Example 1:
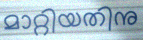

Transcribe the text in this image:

മാറ്റിയതിനു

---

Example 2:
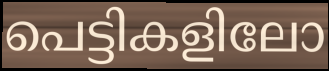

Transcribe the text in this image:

പെട്ടികളിലോ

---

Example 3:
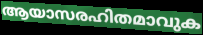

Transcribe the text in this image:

ആയാസരഹിതമാവുക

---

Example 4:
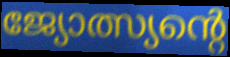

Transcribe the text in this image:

ജ്യോത്സ്യന്റെ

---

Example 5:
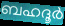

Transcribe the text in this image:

ബഹദൂർ